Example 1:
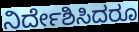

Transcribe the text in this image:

ನಿರ್ದೇಶಿಸಿದರೂ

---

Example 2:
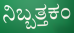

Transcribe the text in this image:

ನಿಬ್ಬತ್ತಕಂ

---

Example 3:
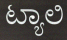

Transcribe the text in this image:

ಟ್ಯಾಲಿ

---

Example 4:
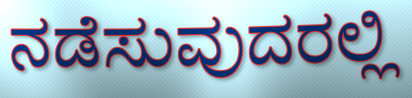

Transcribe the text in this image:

ನಡೆಸುವುದರಲ್ಲಿ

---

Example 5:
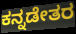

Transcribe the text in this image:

ಕನ್ನಡೇತರ